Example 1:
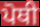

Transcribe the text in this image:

ਪੋਥੀ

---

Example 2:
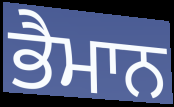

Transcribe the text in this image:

ਭੈਮਾਨ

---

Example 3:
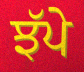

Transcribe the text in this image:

ਝੱਪੇ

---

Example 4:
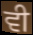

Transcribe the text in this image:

ਵੀ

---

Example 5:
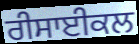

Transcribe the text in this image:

ਰੀਸਾਈਕਲ